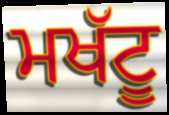
ਮਖੱਟੂ